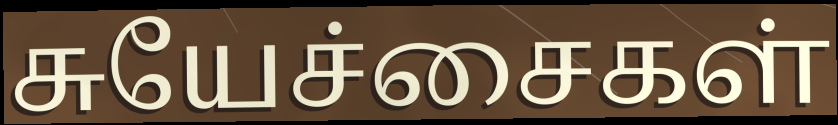
சுயேச்சைகள்